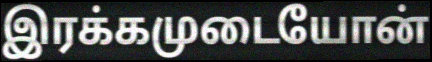
இரக்கமுடையோன்